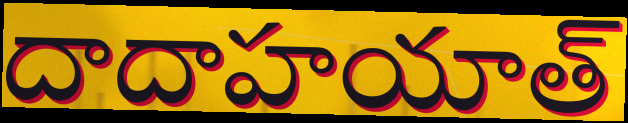
దాదాహయాత్